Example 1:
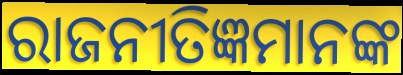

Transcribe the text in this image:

ରାଜନୀତିଜ୍ଞମାନଙ୍କ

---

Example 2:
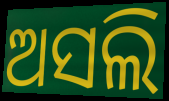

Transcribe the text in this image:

ଅସଲି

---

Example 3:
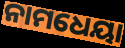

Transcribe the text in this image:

ନାମଧେୟା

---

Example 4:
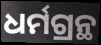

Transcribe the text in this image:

ଧର୍ମଗ୍ରନ୍ଥ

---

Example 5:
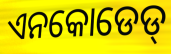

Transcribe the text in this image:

ଏନକୋଡେଡ୍